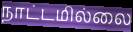
நாட்டமில்லை